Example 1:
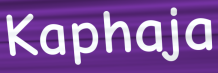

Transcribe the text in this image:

Kaphaja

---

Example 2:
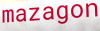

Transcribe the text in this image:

mazagon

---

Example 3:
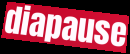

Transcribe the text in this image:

diapause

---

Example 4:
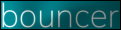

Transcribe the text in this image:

bouncer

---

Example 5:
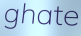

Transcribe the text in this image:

ghate